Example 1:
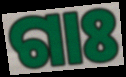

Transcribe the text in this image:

ଗାଃ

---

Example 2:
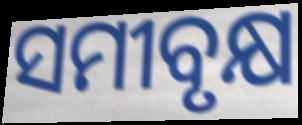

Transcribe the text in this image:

ସମୀବୃକ୍ଷ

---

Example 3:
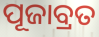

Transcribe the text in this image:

ପୂଜାବ୍ରତ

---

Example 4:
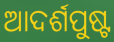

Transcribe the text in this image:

ଆଦର୍ଶପୁଷ୍ଟ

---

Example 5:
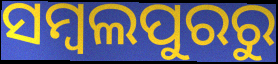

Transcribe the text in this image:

ସମ୍ବଲପୁରରୁ